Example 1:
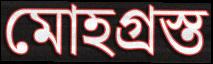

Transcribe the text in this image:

মোহগ্রস্ত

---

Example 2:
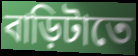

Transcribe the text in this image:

বাড়িটাতে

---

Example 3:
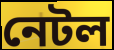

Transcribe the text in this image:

নেটল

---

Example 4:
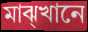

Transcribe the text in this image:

মাঝ্খানে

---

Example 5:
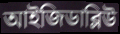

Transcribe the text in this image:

আইজিডাব্লিউ